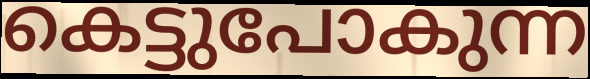
കെട്ടുപോകുന്ന